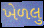
ખેળલુ